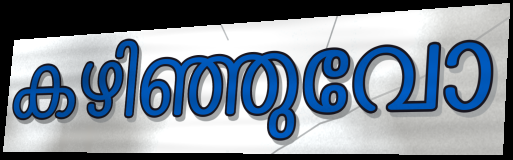
കഴിഞ്ഞുവോ